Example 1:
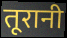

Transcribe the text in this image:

तूरानी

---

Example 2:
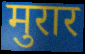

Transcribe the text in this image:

मुरार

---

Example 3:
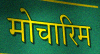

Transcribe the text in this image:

मोचारिम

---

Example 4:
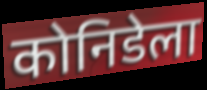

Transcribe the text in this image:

कोनिडेला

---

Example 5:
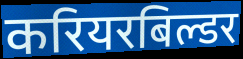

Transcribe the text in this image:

करियरबिल्डर